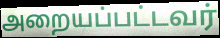
அறையப்பட்டவர்